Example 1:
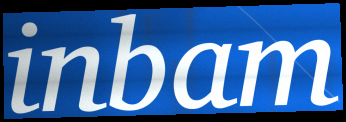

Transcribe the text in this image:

inbam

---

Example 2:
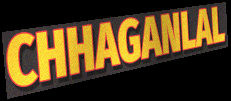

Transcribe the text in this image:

CHHAGANLAL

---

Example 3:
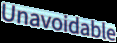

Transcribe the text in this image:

Unavoidable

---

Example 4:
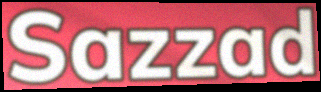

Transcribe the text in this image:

Sazzad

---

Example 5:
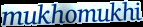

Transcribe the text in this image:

mukhomukhi